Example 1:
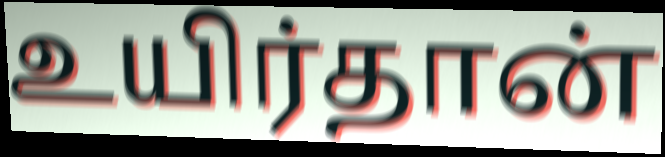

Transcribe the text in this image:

உயிர்தான்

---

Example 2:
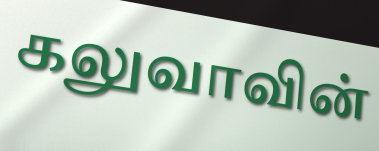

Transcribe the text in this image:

கலுவாவின்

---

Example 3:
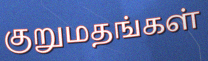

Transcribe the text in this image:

குறுமதங்கள்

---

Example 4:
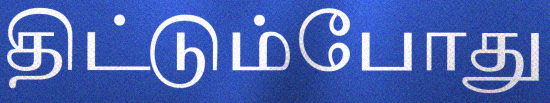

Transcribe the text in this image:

திட்டும்போது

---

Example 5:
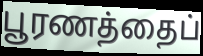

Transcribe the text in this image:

பூரணத்தைப்